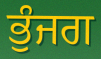
ਭੁੰਜਗ